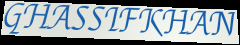
GHASSIFKHAN